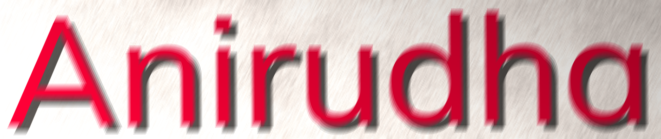
Anirudha